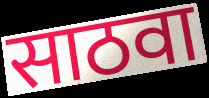
साठवा